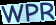
WPR